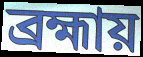
ব্রহ্মায়